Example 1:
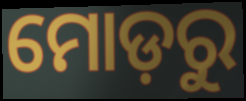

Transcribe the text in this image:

ମୋଡ଼ରୁ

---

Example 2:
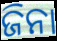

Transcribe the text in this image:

ଜିନା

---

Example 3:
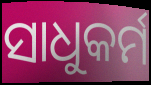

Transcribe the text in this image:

ସାଧୁକର୍ମ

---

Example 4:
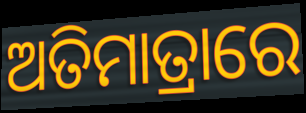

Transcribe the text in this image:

ଅତିମାତ୍ରାରେ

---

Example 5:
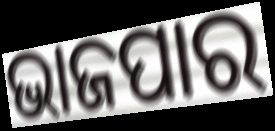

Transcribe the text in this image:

ଭାଜପାର